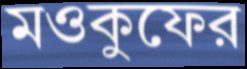
মওকুফের